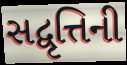
સદ્વૃત્તિની